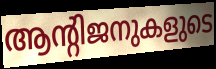
ആന്റിജനുകളുടെ